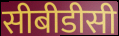
सीबीडीसी